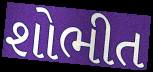
શોભીત